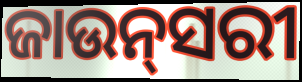
ଜାଉନ୍‌ସରୀ